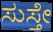
ಸುಸ್ತೇ